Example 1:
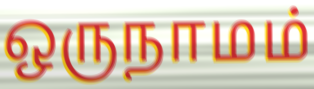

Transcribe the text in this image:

ஒருநாமம்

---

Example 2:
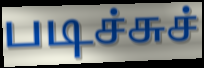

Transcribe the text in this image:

படிச்சுச்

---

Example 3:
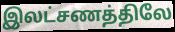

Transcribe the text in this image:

இலட்சணத்திலே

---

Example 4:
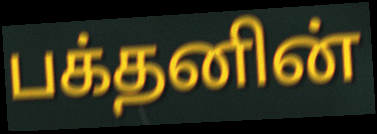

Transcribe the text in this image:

பக்தனின்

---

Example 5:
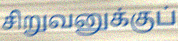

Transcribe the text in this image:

சிறுவனுக்குப்